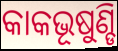
କାକଭୂଷୁଣ୍ଡି